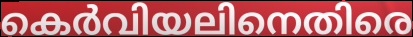
കെർവിയലിനെതിരെ